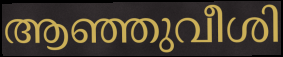
ആഞ്ഞുവീശി